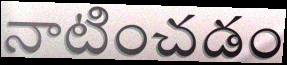
నాటించడం